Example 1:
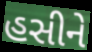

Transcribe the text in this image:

હસીને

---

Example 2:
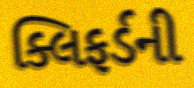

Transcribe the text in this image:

ક્લિફર્ડની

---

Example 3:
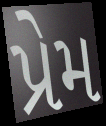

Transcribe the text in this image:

પ્રેમ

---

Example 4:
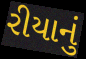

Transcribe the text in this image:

રીયાનું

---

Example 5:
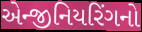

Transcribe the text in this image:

એન્જીનિયરિંગનો